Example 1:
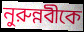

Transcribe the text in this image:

নুরুন্নবীকে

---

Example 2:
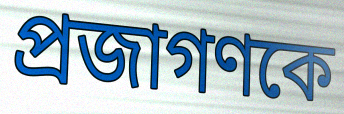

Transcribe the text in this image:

প্রজাগণকে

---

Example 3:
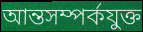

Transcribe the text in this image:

আন্তসম্পর্কযুক্ত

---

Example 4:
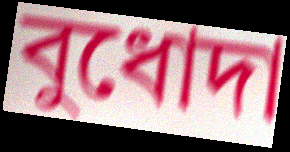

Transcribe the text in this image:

বুধোদা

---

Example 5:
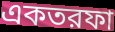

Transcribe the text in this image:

একতরফা